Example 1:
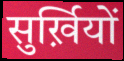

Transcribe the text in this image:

सुर्ख़ियों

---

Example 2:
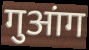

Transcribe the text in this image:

गुआंग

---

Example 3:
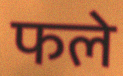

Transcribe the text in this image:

फले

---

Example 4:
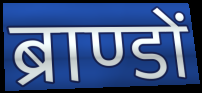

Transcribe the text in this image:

ब्राण्डों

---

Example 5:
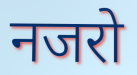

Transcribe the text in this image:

नजरो